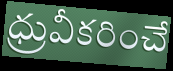
ధ్రువీకరించే